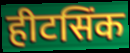
हीटसिंक